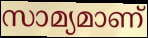
സാമ്യമാണ്